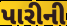
પારીની